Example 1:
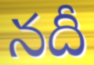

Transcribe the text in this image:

నదీ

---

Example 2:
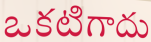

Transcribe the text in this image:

ఒకటిగాదు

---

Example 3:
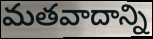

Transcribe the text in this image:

మతవాదాన్ని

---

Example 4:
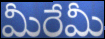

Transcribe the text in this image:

మీరేమీ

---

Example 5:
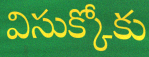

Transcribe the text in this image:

విసుక్కోకు